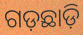
ଗଡ଼ଛାଡ଼ି